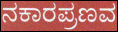
ನಕಾರಪ್ರಣವ